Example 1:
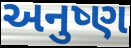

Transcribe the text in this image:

અનુષ્ણ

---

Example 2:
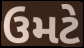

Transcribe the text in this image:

ઉમટે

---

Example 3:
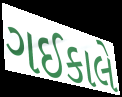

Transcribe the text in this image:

ગઈકાલે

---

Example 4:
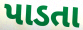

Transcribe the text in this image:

પાડતા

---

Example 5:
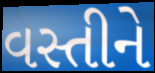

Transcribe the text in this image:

વસ્તીને